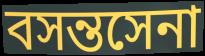
বসন্তসেনা